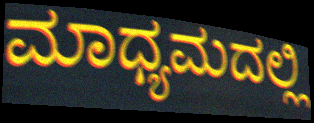
ಮಾಧ್ಯಮದಲ್ಲಿ